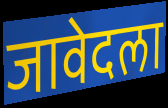
जावेदला